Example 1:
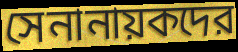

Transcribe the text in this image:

সেনানায়কদের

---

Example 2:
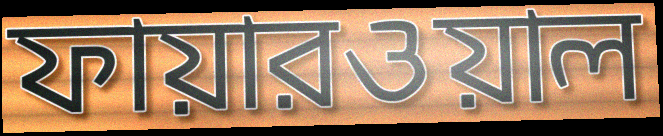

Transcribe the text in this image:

ফায়ারওয়াল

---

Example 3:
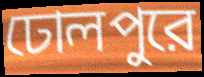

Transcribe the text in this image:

ঢোলপুরে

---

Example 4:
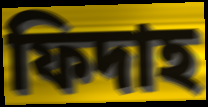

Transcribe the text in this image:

ফিদাহ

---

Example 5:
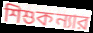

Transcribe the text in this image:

শিশুকন্যার